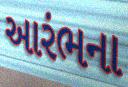
આરંભના